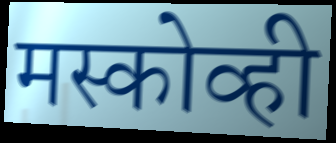
मस्कोव्ही